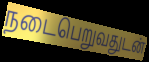
நடைபெறுவதுடன்